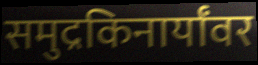
समुद्रकिनार्यांवर